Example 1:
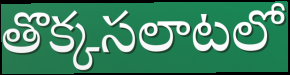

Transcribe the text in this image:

తొక్కసలాటలో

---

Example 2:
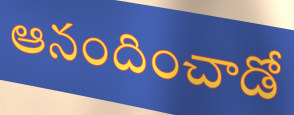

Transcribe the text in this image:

ఆనందించాడో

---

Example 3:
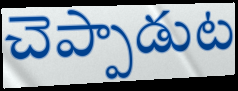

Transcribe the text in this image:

చెప్పాడుట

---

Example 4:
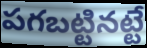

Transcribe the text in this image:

పగబట్టినట్టే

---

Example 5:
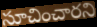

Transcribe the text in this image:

సూచించారని